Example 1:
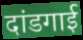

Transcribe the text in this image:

दांडगाई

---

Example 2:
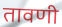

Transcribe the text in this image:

तावणी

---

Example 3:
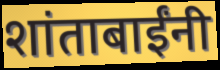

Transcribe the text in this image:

शांताबाईंनी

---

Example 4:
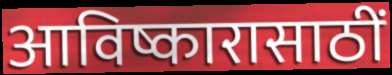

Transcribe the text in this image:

आविष्कारासाठीं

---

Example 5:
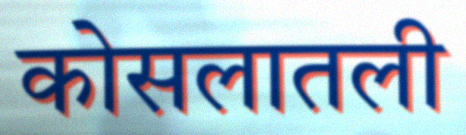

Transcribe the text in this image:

कोसलातली